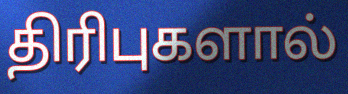
திரிபுகளால்